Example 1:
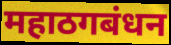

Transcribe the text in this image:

महाठगबंधन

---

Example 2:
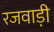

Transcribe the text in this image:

रजवाड़ी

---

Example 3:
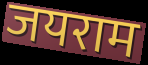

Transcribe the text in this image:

जयराम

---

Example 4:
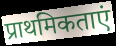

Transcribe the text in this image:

प्राथमिकताएं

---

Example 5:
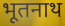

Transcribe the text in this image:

भूतनाथ